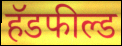
हॅडफील्ड